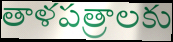
తాళపత్రాలకు